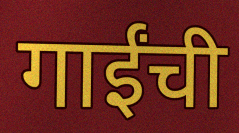
गाईंची